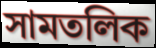
সামতলিক